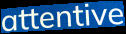
attentive